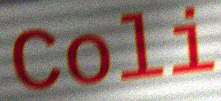
Coli